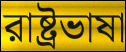
রাষ্ট্রভাষা